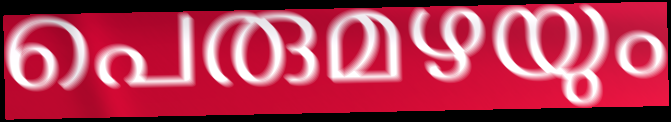
പെരുമഴയും